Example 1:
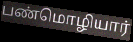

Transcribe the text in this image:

பண்மொழியார்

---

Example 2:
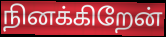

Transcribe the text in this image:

நினக்கிறேன்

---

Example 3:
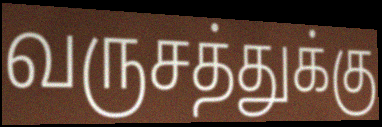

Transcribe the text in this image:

வருசத்துக்கு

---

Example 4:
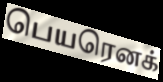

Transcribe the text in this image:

பெயரெனக்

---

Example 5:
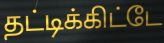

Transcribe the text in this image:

தட்டிக்கிட்டே